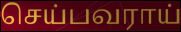
செய்பவராய்